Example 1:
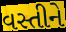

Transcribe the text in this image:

વસ્તીને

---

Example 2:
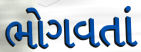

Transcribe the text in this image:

ભોગવતાં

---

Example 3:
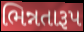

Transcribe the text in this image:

ભિન્નતારૂપ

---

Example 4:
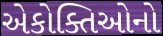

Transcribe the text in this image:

એકોક્તિઓનો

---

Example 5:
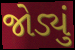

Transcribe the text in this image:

જોડ્યું